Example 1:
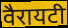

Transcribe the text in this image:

वैरायटी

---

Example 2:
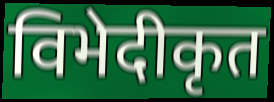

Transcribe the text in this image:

विभेदीकृत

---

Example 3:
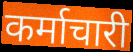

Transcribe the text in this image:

कर्माचारी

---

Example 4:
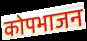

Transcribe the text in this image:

कोपभाजन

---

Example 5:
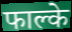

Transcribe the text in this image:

फाल्के